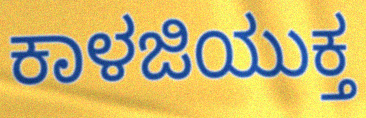
ಕಾಳಜಿಯುಕ್ತ